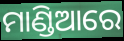
ମାଣ୍ଡିଆରେ